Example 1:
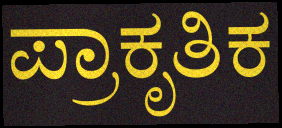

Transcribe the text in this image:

ಪ್ರಾಕೃತಿಕ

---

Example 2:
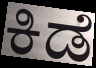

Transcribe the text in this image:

ಕಿಡೆ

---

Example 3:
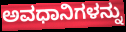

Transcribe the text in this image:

ಅವಧಾನಿಗಳನ್ನು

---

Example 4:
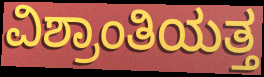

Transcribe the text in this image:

ವಿಶ್ರಾಂತಿಯತ್ತ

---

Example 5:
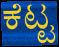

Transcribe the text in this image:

ಕೆಟ್ಟ